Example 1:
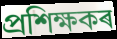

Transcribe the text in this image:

প্ৰশিক্ষকৰ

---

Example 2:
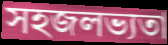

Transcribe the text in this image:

সহজলভ্যতা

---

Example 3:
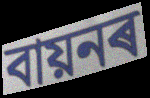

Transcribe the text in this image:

বায়নৰ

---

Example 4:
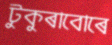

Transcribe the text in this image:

টুকুৰাবোৰে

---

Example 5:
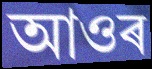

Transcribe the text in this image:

আওৰ